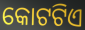
କୋଟଟିଏ